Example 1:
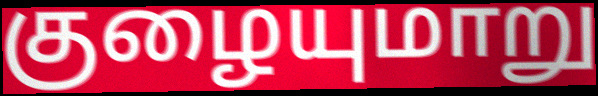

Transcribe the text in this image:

குழையுமாறு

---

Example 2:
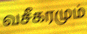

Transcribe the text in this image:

வசீகரமும்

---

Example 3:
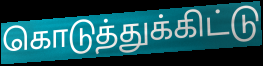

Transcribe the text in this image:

கொடுத்துக்கிட்டு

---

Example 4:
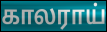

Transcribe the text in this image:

காலராய்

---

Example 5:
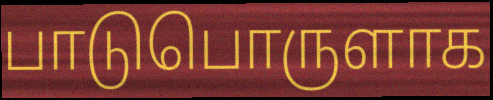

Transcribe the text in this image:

பாடுபொருளாக